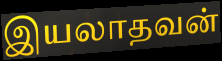
இயலாதவன்